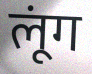
लूंग